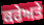
ਕਰੇਅਤੇ